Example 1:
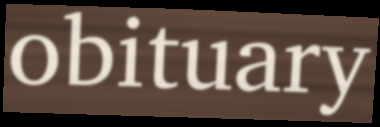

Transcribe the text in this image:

obituary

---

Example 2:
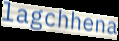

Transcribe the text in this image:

lagchhena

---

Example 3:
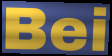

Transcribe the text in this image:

Bei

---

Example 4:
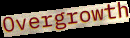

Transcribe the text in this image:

Overgrowth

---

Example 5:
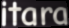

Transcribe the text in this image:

itara